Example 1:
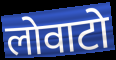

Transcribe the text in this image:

लोवाटो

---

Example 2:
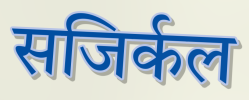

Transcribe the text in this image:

सजिर्कल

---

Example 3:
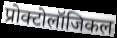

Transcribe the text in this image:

प्रोक्टोलॉजिकल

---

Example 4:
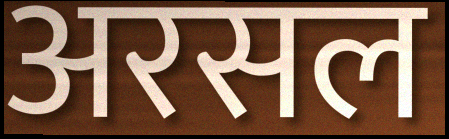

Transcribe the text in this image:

अरसल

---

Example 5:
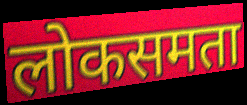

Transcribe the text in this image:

लोकसमता